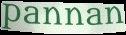
pannan